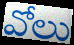
వోలు